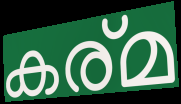
കര്മ